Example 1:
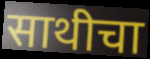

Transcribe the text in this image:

साथीचा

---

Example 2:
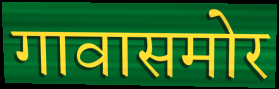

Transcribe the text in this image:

गावासमोर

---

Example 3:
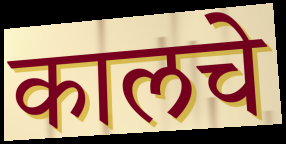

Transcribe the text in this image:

कालचे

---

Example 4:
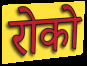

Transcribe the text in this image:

रोको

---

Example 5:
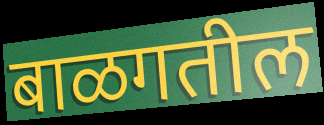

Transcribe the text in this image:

बाळगतील